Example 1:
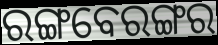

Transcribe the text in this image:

ରଙ୍ଗବେରଙ୍ଗର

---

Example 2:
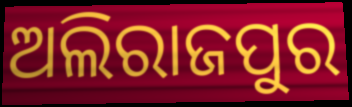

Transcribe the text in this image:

ଅଲିରାଜପୁର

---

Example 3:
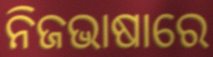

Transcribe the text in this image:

ନିଜଭାଷାରେ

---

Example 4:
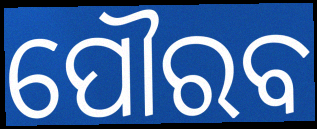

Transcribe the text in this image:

ପୌରବ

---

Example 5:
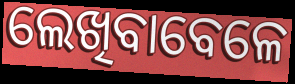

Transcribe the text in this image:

ଲେଖିବାବେଳେ